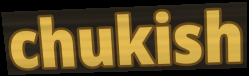
chukish